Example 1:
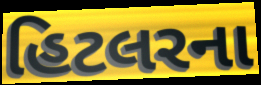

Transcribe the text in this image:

હિટલરના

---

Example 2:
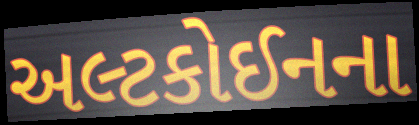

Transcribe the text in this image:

અલ્ટકોઈનના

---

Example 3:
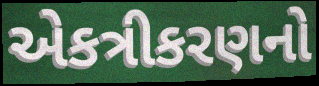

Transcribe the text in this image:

એકત્રીકરણનો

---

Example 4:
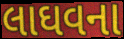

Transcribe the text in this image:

લાઘવના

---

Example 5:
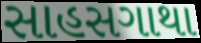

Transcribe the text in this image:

સાહસગાથા